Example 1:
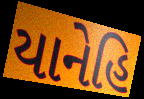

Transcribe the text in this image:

યાનેહિ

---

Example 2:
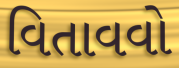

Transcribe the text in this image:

વિતાવવો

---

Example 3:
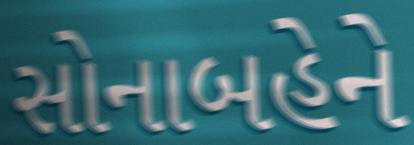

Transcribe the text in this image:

સોનાબહેને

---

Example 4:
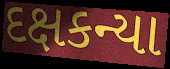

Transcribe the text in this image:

દક્ષકન્યા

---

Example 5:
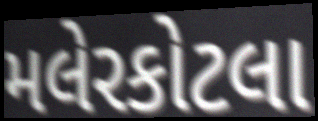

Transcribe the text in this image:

મલેરકોટલા